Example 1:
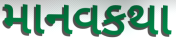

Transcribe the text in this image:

માનવકથા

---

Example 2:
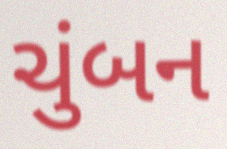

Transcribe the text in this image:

ચુંબન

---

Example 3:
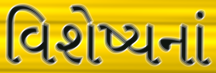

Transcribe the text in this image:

વિશેષ્યનાં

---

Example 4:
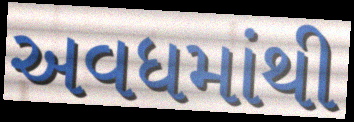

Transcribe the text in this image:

અવધમાંથી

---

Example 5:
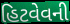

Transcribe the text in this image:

હિટવેવની